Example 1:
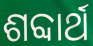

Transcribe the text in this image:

ଶବ୍ଦାର୍ଥ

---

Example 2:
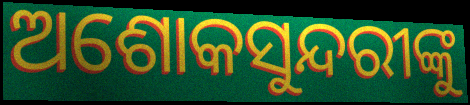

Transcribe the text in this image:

ଅଶୋକସୁନ୍ଦରୀଙ୍କୁ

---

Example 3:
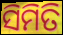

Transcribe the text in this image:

ସିମିତି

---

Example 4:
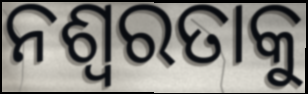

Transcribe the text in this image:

ନଶ୍ବରତାକୁ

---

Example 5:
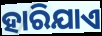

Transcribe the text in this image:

ହାରିଯାଏ